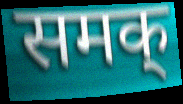
समक्